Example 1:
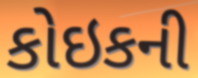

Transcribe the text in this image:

કોઇકની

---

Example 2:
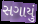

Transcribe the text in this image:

સગાયું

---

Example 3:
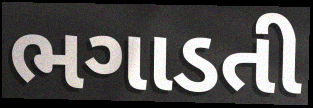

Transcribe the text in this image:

ભગાડતી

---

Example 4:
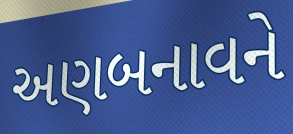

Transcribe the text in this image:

અણબનાવને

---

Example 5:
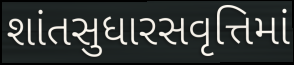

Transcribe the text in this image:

શાંતસુધારસવૃત્તિમાં